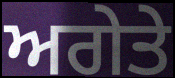
ਅਗੇਤੇ